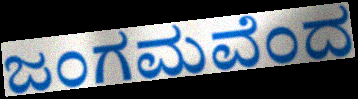
ಜಂಗಮವೆಂದ